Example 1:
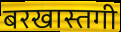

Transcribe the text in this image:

बरखास्तगी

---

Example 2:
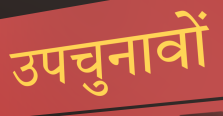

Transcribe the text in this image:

उपचुनावों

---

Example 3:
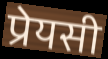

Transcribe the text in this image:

प्रेयसी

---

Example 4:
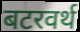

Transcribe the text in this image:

बटरवर्थ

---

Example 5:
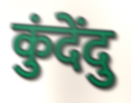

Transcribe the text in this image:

कुंदेंदु